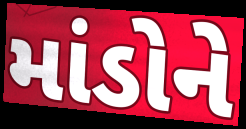
માંડોને